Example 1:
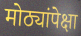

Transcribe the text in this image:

मोठ्यांपेक्षा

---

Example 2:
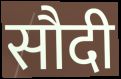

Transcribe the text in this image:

सौदी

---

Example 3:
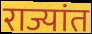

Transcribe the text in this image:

राज्यांत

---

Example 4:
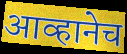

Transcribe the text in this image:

आव्हानेच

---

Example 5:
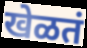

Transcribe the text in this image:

खेळतं